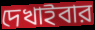
দেখাইবার